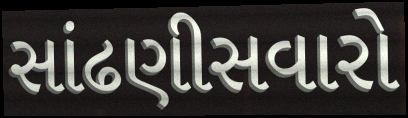
સાંઢણીસવારો